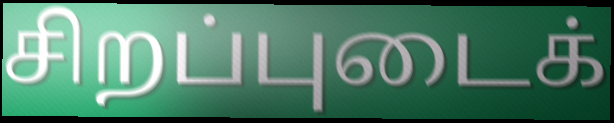
சிறப்புடைக்